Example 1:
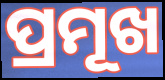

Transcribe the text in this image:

ପ୍ରମୂଖ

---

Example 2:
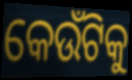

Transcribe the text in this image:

କେଉଁଟିକୁ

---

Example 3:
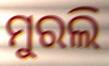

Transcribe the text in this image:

ମୁରଲି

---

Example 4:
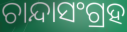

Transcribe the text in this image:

ଚାନ୍ଦାସଂଗ୍ରହ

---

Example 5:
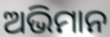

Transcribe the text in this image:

ଅଭିମାନ